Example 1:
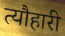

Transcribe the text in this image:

त्यौहारी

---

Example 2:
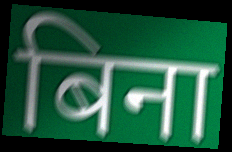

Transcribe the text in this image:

बिना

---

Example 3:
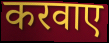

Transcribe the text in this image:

करवाए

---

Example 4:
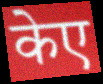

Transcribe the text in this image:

केए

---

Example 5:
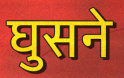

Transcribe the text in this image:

घुसने